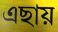
এছায়